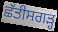
ਛੱਤੀਸਗਡ਼੍ਹ